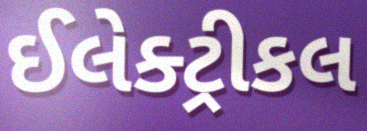
ઈલેક્ટ્રીકલ